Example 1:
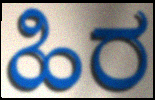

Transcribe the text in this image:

ಹಿರ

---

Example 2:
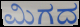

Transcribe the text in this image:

ಮಿಗದ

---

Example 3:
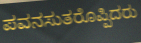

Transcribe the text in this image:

ಪವನಸುತರೊಪ್ಪಿದರು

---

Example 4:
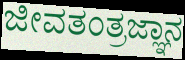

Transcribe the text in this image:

ಜೀವತಂತ್ರಜ್ಞಾನ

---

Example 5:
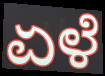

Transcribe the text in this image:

ಏಳೆ